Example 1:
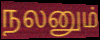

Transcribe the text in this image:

நலனும்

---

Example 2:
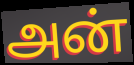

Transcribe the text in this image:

அன்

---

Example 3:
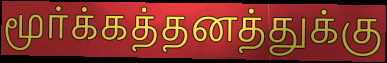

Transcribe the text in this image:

மூர்க்கத்தனத்துக்கு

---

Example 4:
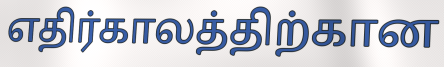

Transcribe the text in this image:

எதிர்காலத்திற்கான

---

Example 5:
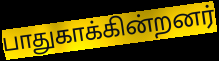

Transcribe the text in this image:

பாதுகாக்கின்றனர்